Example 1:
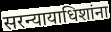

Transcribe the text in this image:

सरन्यायाधिशांना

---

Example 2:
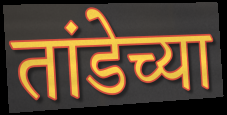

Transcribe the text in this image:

तांडेच्या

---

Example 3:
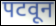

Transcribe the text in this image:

पटवून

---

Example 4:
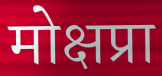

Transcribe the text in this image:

मोक्षप्रा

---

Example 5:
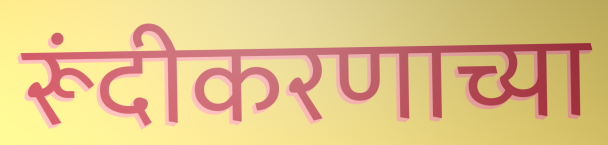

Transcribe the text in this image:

रूंदीकरणाच्या